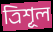
ত্রিশূল